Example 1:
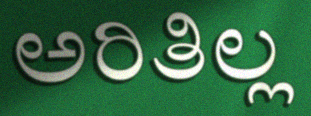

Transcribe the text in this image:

ಅರಿತಿಲ್ಲ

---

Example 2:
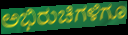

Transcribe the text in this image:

ಅಭಿರುಚಿಗಳಿಗೂ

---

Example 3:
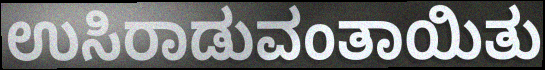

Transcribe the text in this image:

ಉಸಿರಾಡುವಂತಾಯಿತು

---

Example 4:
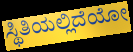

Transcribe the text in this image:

ಸ್ಥಿತಿಯಲ್ಲಿದೆಯೋ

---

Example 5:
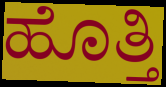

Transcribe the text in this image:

ಹೊತ್ತಿ